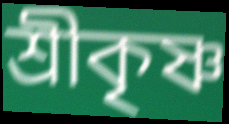
শ্রীকৃষ্ণ